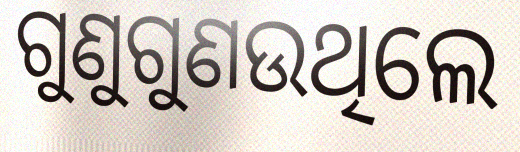
ଗୁଣୁଗୁଣଉଥିଲେ